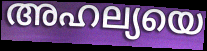
അഹല്യയെ